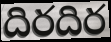
దిరదిర